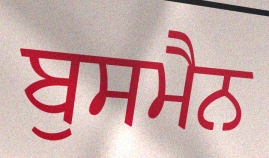
ਬੁਸਮੈਨ